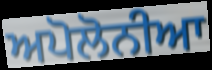
ਅਪੋਲੋਨੀਆ